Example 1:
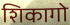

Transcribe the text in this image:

शिकागो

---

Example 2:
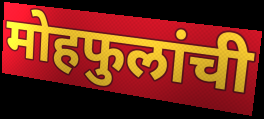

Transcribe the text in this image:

मोहफुलांची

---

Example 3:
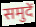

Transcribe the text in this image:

समुदें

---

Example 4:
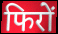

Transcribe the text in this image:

फिरों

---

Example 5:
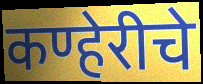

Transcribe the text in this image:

कण्हेरीचे